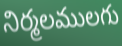
నిర్మలములగు